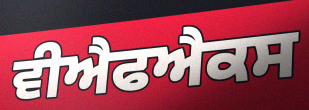
ਵੀਐਫਐਕਸ